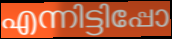
എന്നിട്ടിപ്പോ